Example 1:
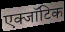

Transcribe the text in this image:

एक्जॉटिक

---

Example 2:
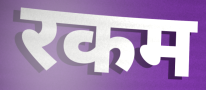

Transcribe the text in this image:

रकम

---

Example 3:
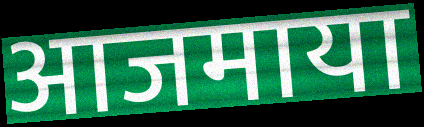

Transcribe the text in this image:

आजमाया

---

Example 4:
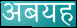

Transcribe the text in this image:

अबयह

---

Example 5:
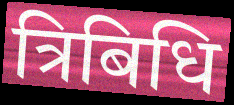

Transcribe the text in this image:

त्रिबिधि